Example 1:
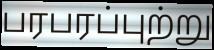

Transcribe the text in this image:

பரபரப்புற்று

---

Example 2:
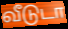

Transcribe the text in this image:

வீடுடா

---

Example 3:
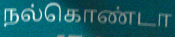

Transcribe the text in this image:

நல்கொண்டா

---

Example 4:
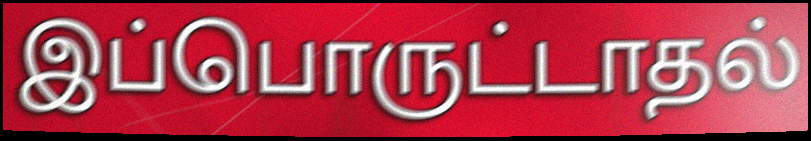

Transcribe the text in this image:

இப்பொருட்டாதல்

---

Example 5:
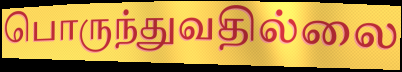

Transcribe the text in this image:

பொருந்துவதில்லை